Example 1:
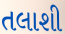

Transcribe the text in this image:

તલાશી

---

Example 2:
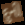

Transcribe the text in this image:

દુની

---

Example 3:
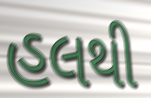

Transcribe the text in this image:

હલથી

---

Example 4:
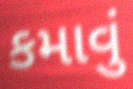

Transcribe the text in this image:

કમાવું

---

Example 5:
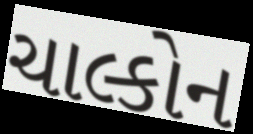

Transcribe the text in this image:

ચાલ્કોન